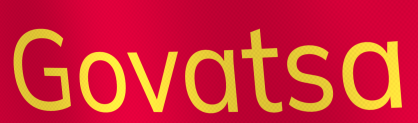
Govatsa